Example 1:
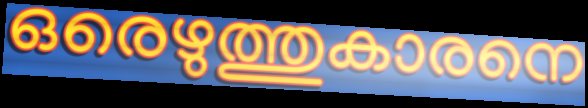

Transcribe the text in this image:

ഒരെഴുത്തുകാരനെ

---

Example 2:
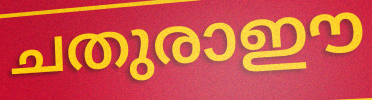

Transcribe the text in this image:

ചതുരാഈ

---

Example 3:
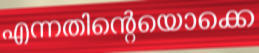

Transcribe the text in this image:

എന്നതിന്റെയൊക്കെ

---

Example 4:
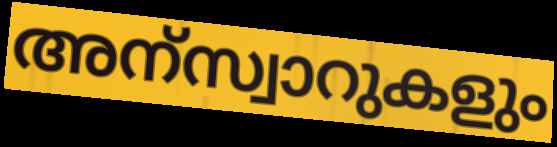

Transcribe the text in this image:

അന്സ്വാറുകളും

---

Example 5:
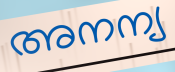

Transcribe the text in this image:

അനന്യ